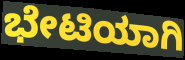
ಭೇಟಿಯಾಗಿ